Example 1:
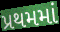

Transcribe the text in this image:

પ્રથમમાં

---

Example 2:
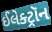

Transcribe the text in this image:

ઈલેક્ટ્રૉન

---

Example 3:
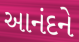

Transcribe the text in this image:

આનંદને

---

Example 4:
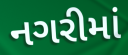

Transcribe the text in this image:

નગરીમાં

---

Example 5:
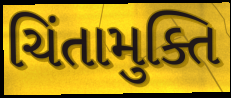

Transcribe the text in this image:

ચિંતામુક્તિ